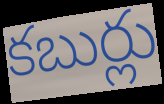
కబుర్లు